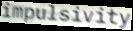
impulsivity